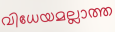
വിധേയമല്ലാത്ത